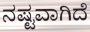
ನಷ್ಟವಾಗಿದೆ